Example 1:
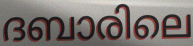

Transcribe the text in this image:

ദബാരിലെ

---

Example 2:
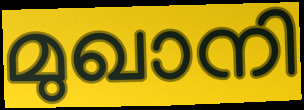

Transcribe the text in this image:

മുഖാനി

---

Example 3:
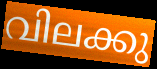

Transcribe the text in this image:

വിലക്കു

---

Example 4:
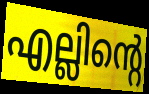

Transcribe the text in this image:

എല്ലിന്റെ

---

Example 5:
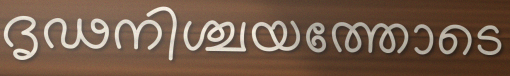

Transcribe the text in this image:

ദൃഢനിശ്ചയത്തോടെ